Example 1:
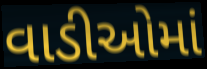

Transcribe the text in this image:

વાડીઓમાં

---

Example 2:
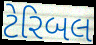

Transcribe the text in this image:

ટેરિબલ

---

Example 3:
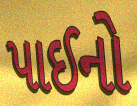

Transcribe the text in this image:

પાઈનો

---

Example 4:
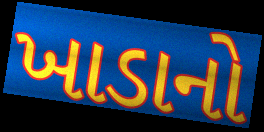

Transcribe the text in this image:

ખાડાનો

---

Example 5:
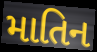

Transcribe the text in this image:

માતિન